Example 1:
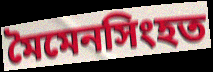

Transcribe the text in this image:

মৈমেনসিংহত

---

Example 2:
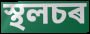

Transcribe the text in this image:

স্থলচৰ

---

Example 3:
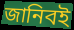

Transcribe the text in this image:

জানিবই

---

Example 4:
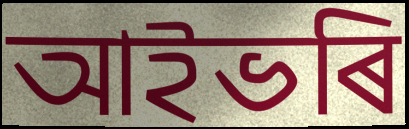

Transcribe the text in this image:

আইভৰি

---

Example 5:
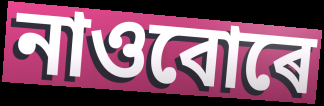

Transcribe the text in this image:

নাওবোৰে